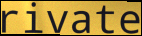
rivate